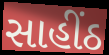
સાહીંઠ